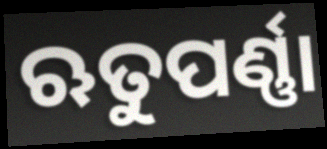
ଋତୁପର୍ଣ୍ଣା